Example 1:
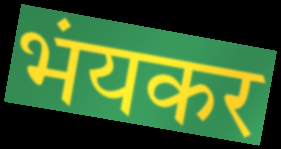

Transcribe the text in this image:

भंयकर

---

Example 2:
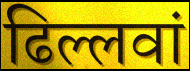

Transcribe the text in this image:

ढिल्लवां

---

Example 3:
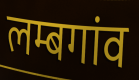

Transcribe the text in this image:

लम्बगांव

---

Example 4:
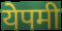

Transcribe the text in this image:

येपमी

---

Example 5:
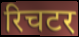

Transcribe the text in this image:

रिचटर